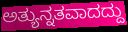
ಅತ್ಯುನ್ನತವಾದದ್ದು